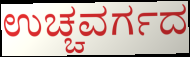
ಉಚ್ಚವರ್ಗದ